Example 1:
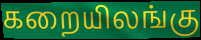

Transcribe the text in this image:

கறையிலங்கு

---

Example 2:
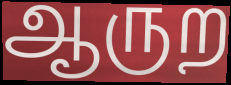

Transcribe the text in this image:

ஆருற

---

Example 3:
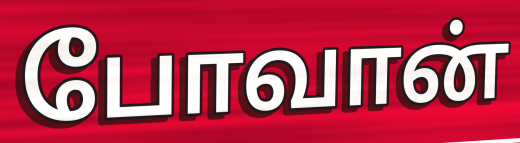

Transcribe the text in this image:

போவான்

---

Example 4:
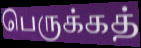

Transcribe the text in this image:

பெருக்கத்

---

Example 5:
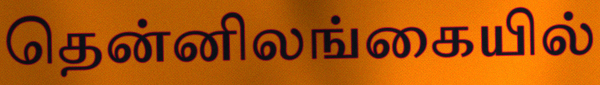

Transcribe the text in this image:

தென்னிலங்கையில்